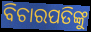
ବିଚାରପତିଙ୍କୁ